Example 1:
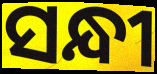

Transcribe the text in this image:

ସନ୍ଧୀ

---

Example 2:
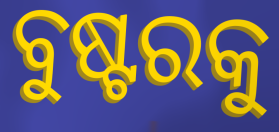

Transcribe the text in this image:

ବୁଷ୍ଟରକୁ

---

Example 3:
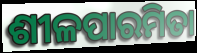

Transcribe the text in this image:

ଶୀଳପାରମିତା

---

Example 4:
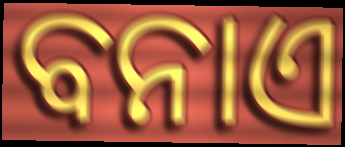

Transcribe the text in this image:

ବନାଏ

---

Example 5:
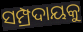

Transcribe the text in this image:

ସମ୍ପ୍ରଦାୟକୁ